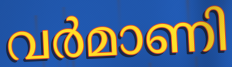
വർമാണി